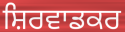
ਸ਼ਿਰਵਾਡਕਰ